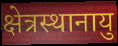
क्षेत्रस्थानायु